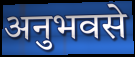
अनुभवसे